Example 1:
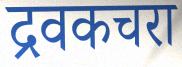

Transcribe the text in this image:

द्रवकचरा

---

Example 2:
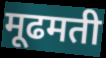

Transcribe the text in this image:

मूढमती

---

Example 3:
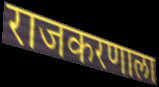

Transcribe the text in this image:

राजकरणाला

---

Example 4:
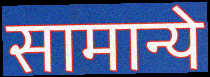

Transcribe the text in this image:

सामान्ये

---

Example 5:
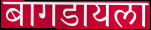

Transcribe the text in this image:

बागडायला